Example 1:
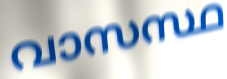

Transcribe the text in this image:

വാസസ്ഥ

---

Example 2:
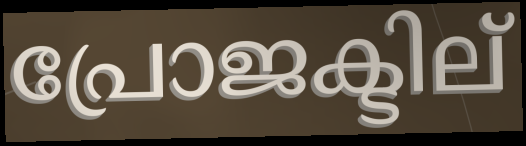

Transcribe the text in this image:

പ്രോജക്ടില്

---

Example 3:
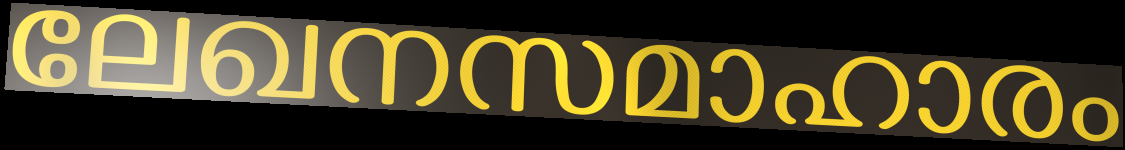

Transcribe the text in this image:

ലേഖനസമാഹാരം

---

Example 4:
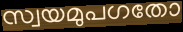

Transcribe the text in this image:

സ്വയമുപഗതോ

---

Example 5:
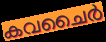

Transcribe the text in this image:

കവചൈർ